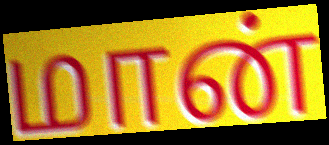
மான்